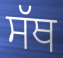
ਸੱਥ